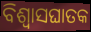
ବିଶ୍ୱାସଘାତକ